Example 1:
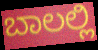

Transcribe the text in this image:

ಬಾಲಲ್ಲಿ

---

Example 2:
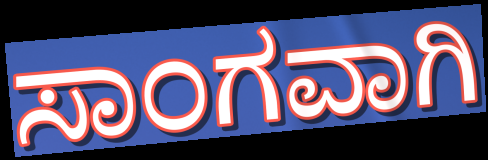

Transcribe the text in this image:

ಸಾಂಗವಾಗಿ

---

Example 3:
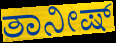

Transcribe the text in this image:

ತಾನೀಷ್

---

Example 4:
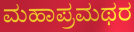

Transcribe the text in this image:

ಮಹಾಪ್ರಮಥರ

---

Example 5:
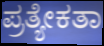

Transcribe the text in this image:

ಪ್ರತ್ಯೇಕತಾ